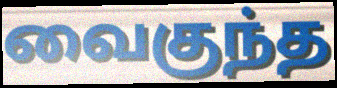
வைகுந்த